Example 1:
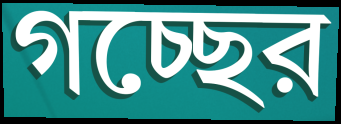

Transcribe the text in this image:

গচ্ছের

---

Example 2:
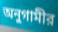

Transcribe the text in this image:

অনুগামীর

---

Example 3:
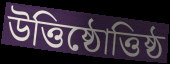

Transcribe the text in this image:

উত্তিষ্ঠোত্তিষ্ঠ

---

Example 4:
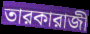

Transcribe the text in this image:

তারকারাজী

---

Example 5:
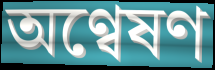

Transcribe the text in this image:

অণ্বেষণ